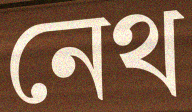
নেথ